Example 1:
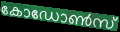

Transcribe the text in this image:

കോഡോൺസ്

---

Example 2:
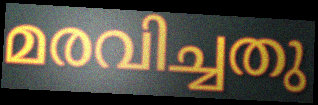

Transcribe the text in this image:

മരവിച്ചതു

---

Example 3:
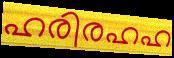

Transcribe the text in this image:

ഹരിരഹഹ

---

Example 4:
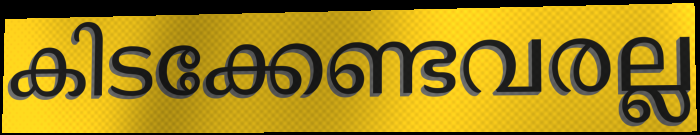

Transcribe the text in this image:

കിടക്കേണ്ടവരല്ല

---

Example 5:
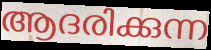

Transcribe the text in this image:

ആദരിക്കുന്ന